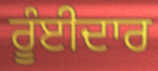
ਰੂੰਈਦਾਰ